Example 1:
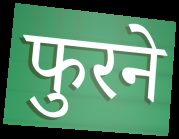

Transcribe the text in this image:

फुरने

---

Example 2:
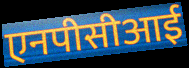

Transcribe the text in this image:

एनपीसीआई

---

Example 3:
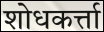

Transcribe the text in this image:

शोधकर्त्ता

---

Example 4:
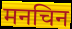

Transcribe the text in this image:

मनचिन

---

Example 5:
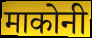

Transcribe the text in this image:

माकोनी